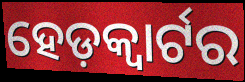
ହେଡ଼କ୍ୱାର୍ଟର